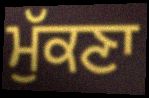
ਮੁੱਕਣਾ